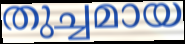
തുച്ചമായ